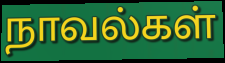
நாவல்கள்